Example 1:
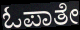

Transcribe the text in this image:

ಓಪಾತೇ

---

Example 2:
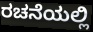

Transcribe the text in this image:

ರಚನೆಯಲ್ಲಿ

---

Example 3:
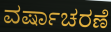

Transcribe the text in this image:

ವರ್ಷಾಚರಣೆ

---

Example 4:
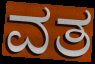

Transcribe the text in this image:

ವತ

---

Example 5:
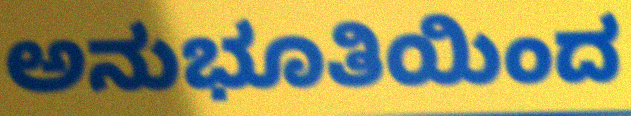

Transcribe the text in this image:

ಅನುಭೂತಿಯಿಂದ